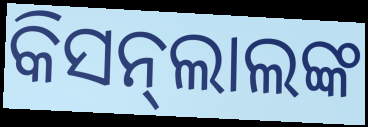
କିସନ୍‌ଲାଲଙ୍କ